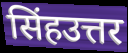
सिंहउत्तर